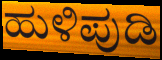
ಹುಳಿಪುಡಿ